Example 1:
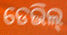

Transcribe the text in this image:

ଡେଭିଲ୍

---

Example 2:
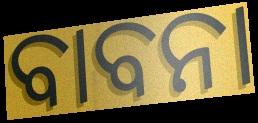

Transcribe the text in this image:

ବାବନା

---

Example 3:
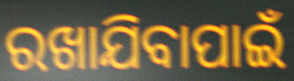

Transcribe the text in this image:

ରଖାଯିବାପାଇଁ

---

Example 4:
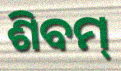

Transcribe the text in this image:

ଶିବମ୍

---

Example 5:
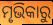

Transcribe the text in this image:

ମୃଭିକାରୁ